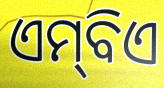
ଏମ୍‌ବିଏ